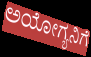
ಅಯೋಗ್ಯನಿಗೆ